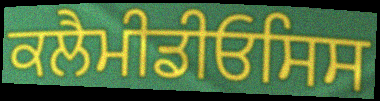
ਕਲੈਮੀਡੀਓਸਿਸ